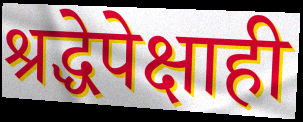
श्रद्धेपेक्षाही